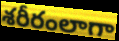
శరీరంలాగా